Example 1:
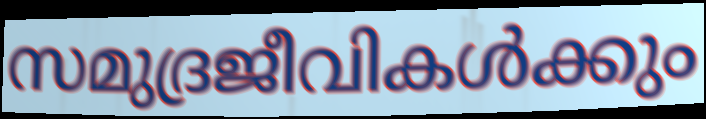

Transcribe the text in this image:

സമുദ്രജീവികൾക്കും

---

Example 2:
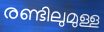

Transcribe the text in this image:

രണ്ടിലുമുള്ള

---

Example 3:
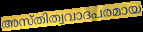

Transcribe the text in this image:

അസ്തിത്വവാദപരമായ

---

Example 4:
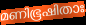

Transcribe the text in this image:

മണിഭൂഷിതാഃ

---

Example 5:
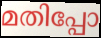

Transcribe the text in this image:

മതിപ്പോ